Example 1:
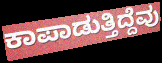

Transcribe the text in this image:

ಕಾಪಾಡುತ್ತಿದ್ದೆವು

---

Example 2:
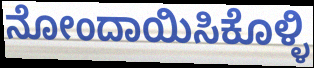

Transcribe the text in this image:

ನೋಂದಾಯಿಸಿಕೊಳ್ಳಿ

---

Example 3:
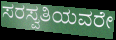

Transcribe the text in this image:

ಸರಸ್ವತಿಯವರೇ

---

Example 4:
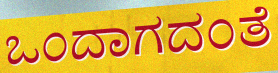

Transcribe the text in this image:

ಒಂದಾಗದಂತೆ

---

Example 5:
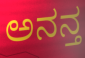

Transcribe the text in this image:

ಅನನ್ತ